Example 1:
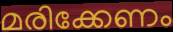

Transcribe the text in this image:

മരിക്കേണം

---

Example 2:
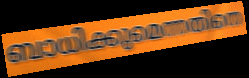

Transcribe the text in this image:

ബാധിക്കുമെന്നതിനെ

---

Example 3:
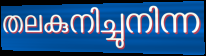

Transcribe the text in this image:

തലകുനിച്ചുനിന്ന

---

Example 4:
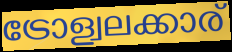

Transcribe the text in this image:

ട്രോള്വലക്കാര്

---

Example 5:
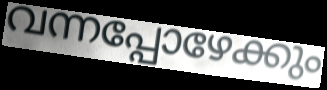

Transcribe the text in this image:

വന്നപ്പോഴേക്കും